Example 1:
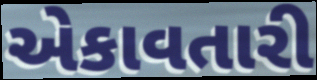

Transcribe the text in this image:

એકાવતારી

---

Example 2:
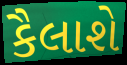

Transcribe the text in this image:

કૈલાશે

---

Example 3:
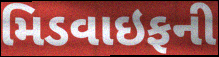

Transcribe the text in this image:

મિડવાઇફની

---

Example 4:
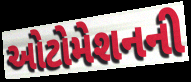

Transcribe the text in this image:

ઓટોમેશનની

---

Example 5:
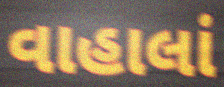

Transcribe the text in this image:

વાહાલાં